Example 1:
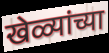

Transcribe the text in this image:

खेळ्यांच्या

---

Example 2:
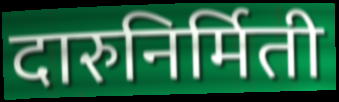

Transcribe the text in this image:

दारुनिर्मिती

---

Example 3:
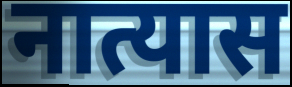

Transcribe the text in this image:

नात्यास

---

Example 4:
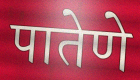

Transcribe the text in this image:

पातेणे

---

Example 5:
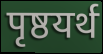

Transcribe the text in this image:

पृष्ठयर्थ